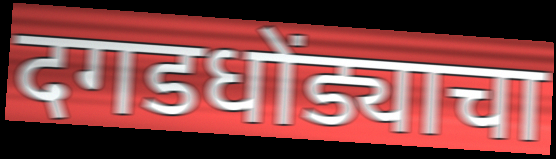
दगडधोंड्याचा